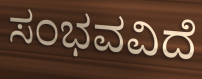
ಸಂಭವವಿದೆ